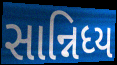
સાન્નિધ્ય